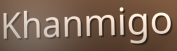
Khanmigo